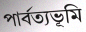
পার্বত্যভূমি